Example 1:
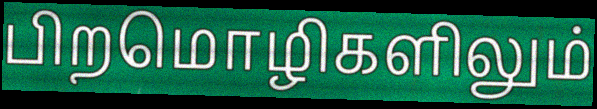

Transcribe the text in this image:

பிறமொழிகளிலும்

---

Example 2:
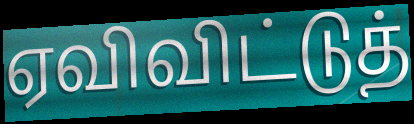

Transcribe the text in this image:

ஏவிவிட்டுத்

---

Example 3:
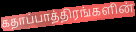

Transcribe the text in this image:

கதாப்பாத்திரங்களின்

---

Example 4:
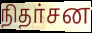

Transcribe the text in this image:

நிதர்சன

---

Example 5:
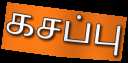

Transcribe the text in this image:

கசப்பு